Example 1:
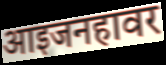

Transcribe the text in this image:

आइजनहावर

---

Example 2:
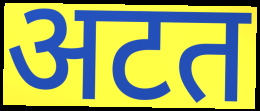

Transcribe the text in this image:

अटत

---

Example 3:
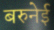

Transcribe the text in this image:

बरुनेई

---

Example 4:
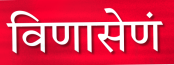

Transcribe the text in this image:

विणासेणं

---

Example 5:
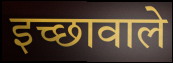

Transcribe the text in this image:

इच्छावाले